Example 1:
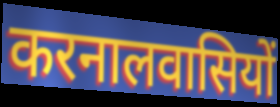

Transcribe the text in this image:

करनालवासियों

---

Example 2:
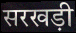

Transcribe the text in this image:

सरखड़ी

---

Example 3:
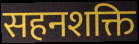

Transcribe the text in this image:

सहनशक्ति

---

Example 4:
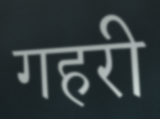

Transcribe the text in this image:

गहरी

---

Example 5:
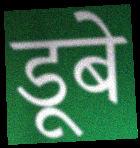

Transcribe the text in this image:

डूबे